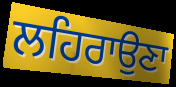
ਲਹਿਰਾਉਣਾ